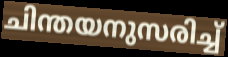
ചിന്തയനുസരിച്ച്